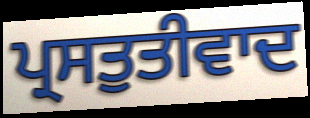
ਪ੍ਰਸਤੁਤੀਵਾਦ